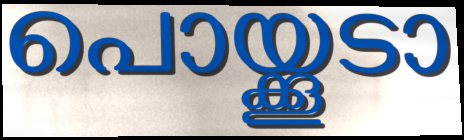
പൊയ്ക്കൂടാ